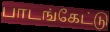
பாடங்கேட்டு